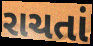
રાચતાં